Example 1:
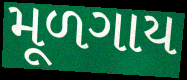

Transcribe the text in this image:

મૂળગાય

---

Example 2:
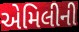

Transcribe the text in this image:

એમિલીની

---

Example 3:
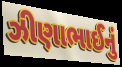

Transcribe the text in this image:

ઝીણાભાઈનું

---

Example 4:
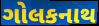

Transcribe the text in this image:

ગોલકનાથ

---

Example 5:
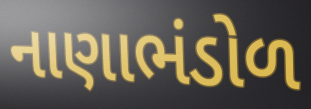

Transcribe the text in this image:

નાણાભંડોળ